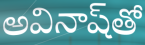
అవినాష్‌తో